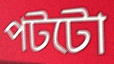
পটটো